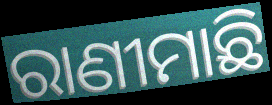
ରାଣୀମାଛି